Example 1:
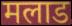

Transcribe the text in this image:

मलाड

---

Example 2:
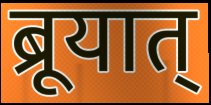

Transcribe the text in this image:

ब्रूयात्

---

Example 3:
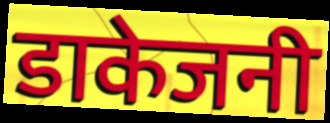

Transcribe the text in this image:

डाकेजनी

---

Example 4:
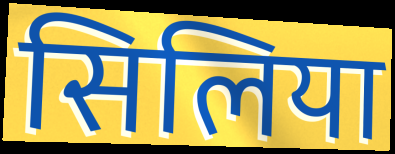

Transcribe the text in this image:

सिलिया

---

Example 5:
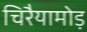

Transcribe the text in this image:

चिरैयामोड़